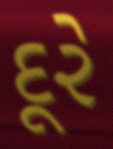
દૂરે